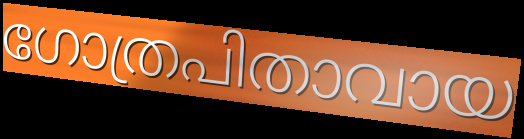
ഗോത്രപിതാവായ